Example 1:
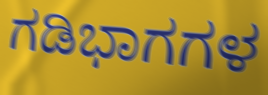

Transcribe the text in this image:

ಗಡಿಭಾಗಗಳ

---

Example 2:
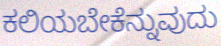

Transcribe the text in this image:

ಕಲಿಯಬೇಕೆನ್ನುವುದು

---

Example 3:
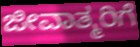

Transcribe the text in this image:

ಜೀವಾತ್ಮರಿಗೆ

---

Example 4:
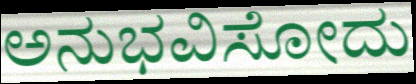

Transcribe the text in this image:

ಅನುಭವಿಸೋದು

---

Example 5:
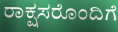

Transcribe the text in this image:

ರಾಕ್ಷಸರೊಂದಿಗೆ